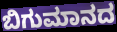
ಬಿಗುಮಾನದ